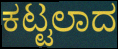
ಕಟ್ಟಲಾದ